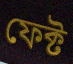
ফেক্ট